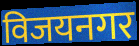
विजयनगर